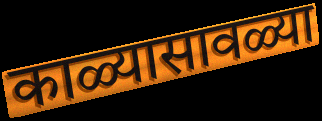
काळ्यासावळ्या